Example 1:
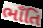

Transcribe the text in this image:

ભાઁતિ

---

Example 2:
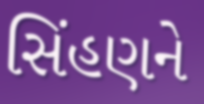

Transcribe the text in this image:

સિંહણને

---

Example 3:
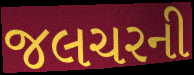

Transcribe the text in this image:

જલચરની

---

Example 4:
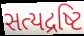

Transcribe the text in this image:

સત્યદ્રષ્ટિ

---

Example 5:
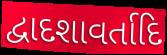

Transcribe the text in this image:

દ્વાદશાવર્તાદિ